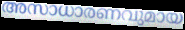
അസാധാരണവുമായ